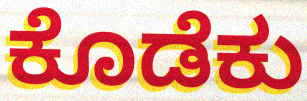
ಕೊಡೆಕು